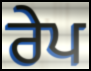
ਰੇਪ